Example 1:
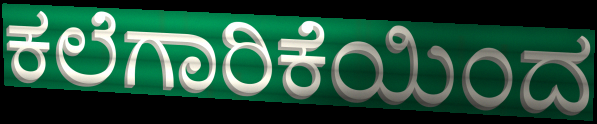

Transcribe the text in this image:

ಕಲೆಗಾರಿಕೆಯಿಂದ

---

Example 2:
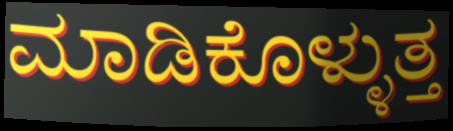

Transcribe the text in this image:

ಮಾಡಿಕೊಳ್ಳುತ್ತ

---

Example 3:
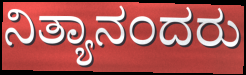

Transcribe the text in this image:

ನಿತ್ಯಾನಂದರು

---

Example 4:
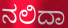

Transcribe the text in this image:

ನಲಿದಾ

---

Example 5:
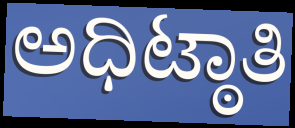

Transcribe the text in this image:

ಅಧಿಟ್ಠಾತಿ